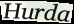
Hurda